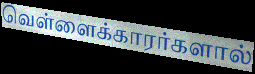
வெள்ளைக்காரர்களால்